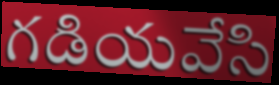
గడియవేసి